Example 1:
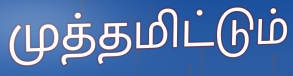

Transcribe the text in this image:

முத்தமிட்டும்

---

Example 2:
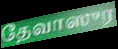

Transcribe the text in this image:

தேவாஸுர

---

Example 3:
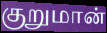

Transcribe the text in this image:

குறுமான்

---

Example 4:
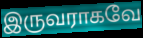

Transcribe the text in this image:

இருவராகவே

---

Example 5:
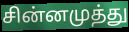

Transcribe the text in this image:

சின்னமுத்து